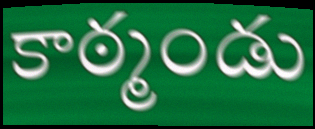
కాఠ్మండు